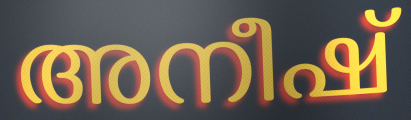
അനീഷ്